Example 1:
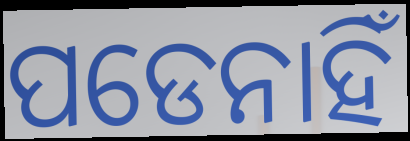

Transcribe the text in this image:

ପଡେନାହିଁ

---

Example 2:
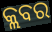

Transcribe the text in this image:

କ୍ଲବର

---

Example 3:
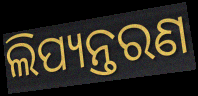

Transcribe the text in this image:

ଲିପ୍ୟନ୍ତରଣ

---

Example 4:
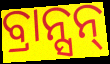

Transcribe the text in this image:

ବ୍ରାନ୍ସନ୍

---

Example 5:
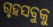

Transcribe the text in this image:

ଗୃହସବୁକୁ